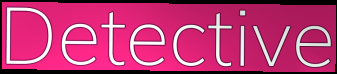
Detective